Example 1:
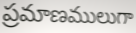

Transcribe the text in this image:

ప్రమాణములుగా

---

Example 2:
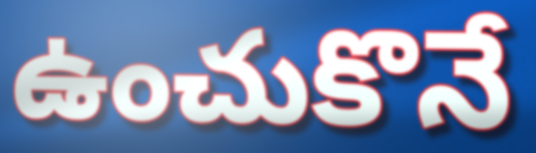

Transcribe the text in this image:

ఉంచుకొనే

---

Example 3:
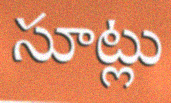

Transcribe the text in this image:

సూట్లు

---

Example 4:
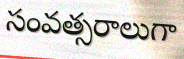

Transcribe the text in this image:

సంవత్సరాలుగా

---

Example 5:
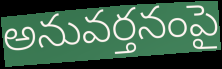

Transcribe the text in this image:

అనువర్తనంపై